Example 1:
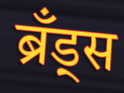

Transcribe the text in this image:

ब्रँड्स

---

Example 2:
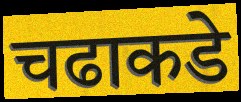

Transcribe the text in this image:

चढाकडे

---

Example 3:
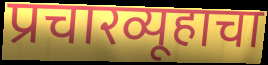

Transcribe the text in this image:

प्रचारव्यूहाचा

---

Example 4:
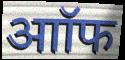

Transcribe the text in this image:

आॉफ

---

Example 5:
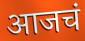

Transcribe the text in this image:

आजचं